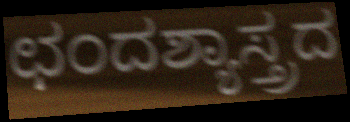
ಛಂದಶ್ಯಾಸ್ತ್ರದ